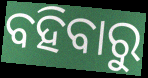
ବହିବାରୁ